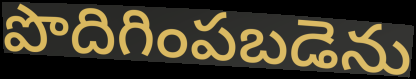
పొదిగింపబడెను